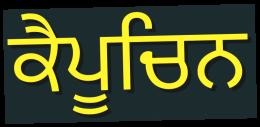
ਕੈਪੂਚਿਨ